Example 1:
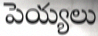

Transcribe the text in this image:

పెయ్యలు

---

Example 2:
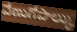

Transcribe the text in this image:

వేణుగోపాల్కు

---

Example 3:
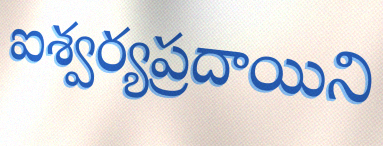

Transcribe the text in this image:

ఐశ్వర్యప్రదాయిని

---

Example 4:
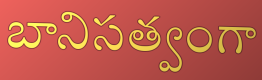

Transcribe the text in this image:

బానిసత్వంగా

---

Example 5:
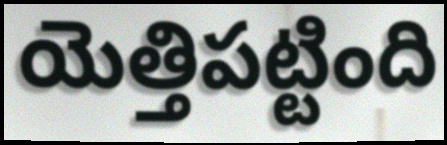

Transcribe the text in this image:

యెత్తిపట్టింది